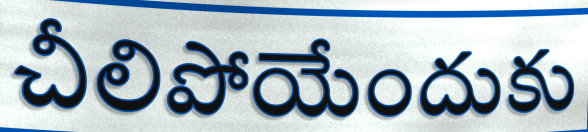
చీలిపోయేందుకు